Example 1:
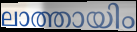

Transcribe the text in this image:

ലാത്തായിം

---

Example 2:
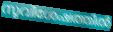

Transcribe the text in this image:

സുവിശേഷത്തിൽ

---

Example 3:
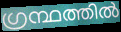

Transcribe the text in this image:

ഗ്രന്ഥത്തിൽ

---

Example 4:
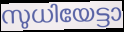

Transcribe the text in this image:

സുധിയേട്ടാ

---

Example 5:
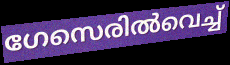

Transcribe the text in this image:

ഗേസെരിൽവെച്ച്